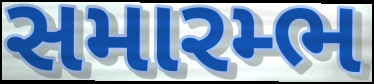
સમારમ્ભ